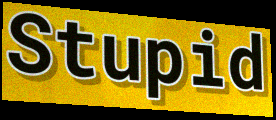
Stupid